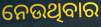
ନେଉଥିବାର